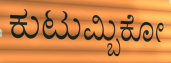
ಕುಟುಮ್ಬಿಕೋ